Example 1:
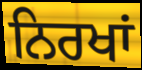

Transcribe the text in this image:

ਨਿਰਖਾਂ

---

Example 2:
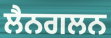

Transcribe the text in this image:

ਲੈਨਗਲਨ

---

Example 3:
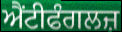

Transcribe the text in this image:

ਐਂਟੀਫੰਗਲਜ਼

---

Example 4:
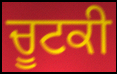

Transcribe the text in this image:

ਚੂਟਕੀ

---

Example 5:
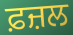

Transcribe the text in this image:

ਫ਼ਜ਼ਲ